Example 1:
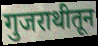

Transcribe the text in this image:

गुजराथीतून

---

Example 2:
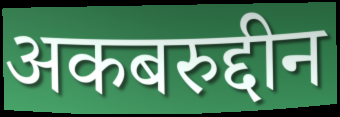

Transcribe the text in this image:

अकबरुद्दीन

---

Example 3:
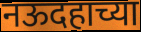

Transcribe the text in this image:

नऊदहाच्या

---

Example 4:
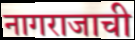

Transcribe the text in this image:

नागराजाची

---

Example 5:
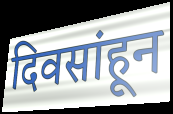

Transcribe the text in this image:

दिवसांहून